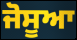
ਜੋਸੂਆ